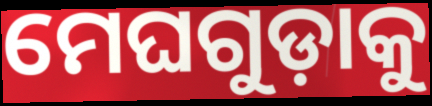
ମେଘଗୁଡ଼ାକୁ